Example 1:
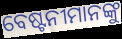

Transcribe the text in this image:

ବେଷ୍ଟନୀମାନଙ୍କୁ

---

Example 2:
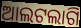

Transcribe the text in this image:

ଆଲଟଲାଗି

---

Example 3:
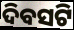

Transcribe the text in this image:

ଦିବସଟି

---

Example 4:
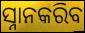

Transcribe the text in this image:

ସ୍ନାନକରିବ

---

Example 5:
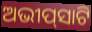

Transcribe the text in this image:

ଅଭୀପ୍‌ସାଟି